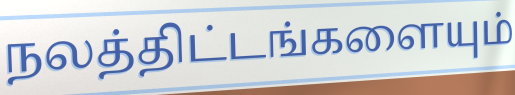
நலத்திட்டங்களையும்